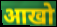
आखो